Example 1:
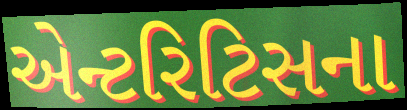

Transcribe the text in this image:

એન્ટરિટિસના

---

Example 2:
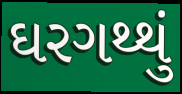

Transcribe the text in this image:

ઘરગથ્થું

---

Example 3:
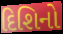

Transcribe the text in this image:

દિશિનો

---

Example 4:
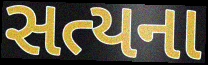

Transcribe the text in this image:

સત્યના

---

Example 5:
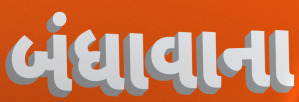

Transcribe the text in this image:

બંધાવાના